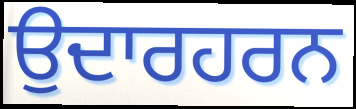
ਉਦਾਰਹਰਨ